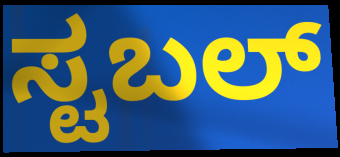
ಸ್ಟಬಲ್